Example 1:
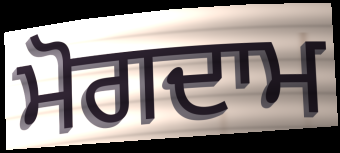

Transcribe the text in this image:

ਮੋਗਦਾਮ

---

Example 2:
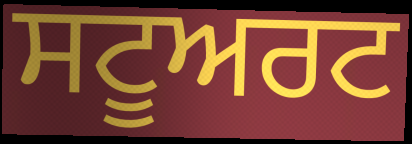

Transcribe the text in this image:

ਸਟੂਅਰਟ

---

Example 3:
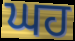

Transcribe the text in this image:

ਘਹ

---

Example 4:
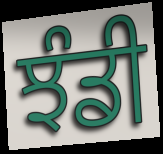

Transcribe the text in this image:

ਝੰਡੀ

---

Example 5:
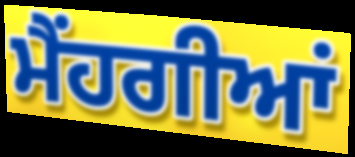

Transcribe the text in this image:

ਮੈਂਹਗੀਆਂ